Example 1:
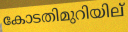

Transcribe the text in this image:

കോടതിമുറിയില്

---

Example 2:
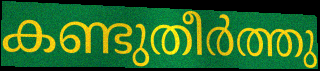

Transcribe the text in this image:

കണ്ടുതീർത്തു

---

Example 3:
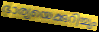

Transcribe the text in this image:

ഭാര്യയെക്കുറിച്ചും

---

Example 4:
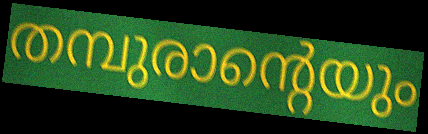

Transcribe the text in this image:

തമ്പുരാന്റെയും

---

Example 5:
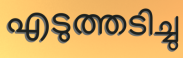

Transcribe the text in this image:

എടുത്തടിച്ചു